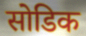
सोडिक